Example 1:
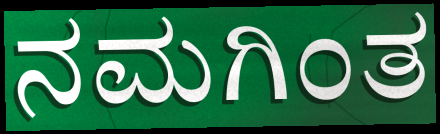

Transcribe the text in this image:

ನಮಗಿಂತ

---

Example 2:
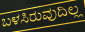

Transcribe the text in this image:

ಬಳಸಿರುವುದಿಲ್ಲ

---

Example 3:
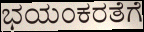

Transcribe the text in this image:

ಭಯಂಕರತೆಗೆ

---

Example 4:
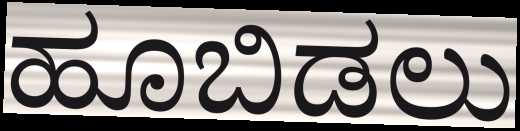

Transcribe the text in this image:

ಹೂಬಿಡಲು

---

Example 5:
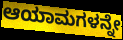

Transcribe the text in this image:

ಆಯಾಮಗಳನ್ನೇ